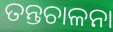
ତନ୍ତଚାଳନା